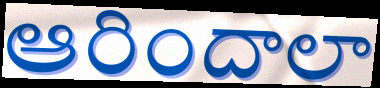
ఆరిందాలా